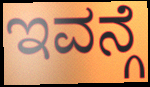
ಇವನ್ಗೆ